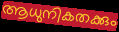
ആധുനികതക്കും